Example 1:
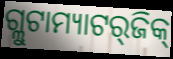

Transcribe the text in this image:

ଗ୍ଲୁଟାମ୍ୟାଟର୍‌ଜିକ୍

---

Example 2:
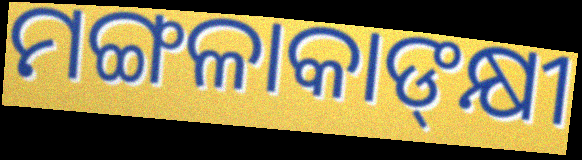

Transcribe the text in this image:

ମଙ୍ଗଳାକାଙ୍‍କ୍ଷୀ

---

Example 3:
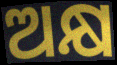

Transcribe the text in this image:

ଅକ୍ଷ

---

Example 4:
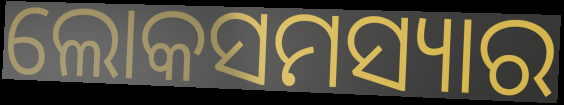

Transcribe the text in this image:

ଲୋକସମସ୍ୟାର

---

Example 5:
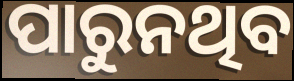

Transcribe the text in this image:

ପାରୁନଥିବ